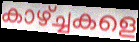
കാഴ്ച്ചകളെ